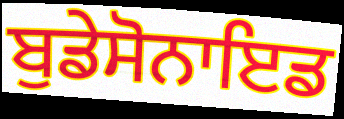
ਬੁਡੇਸੋਨਾਇਡ